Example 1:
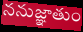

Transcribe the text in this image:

ననుజ్ఞాతుం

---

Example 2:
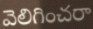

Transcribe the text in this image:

వెలిగించరా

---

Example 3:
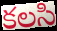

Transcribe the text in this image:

కలసి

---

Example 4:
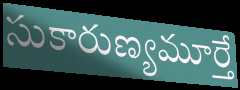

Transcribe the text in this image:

సుకారుణ్యమూర్తే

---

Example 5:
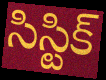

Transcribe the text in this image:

సిస్టిక్